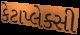
કેટાપ્લેક્સી